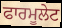
ਫਾਰਮੂਲੇਟ